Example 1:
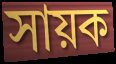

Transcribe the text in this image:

সায়ক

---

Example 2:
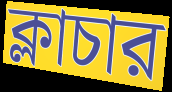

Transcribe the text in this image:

ক্লাচার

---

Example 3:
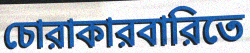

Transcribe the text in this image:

চোরাকারবারিতে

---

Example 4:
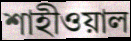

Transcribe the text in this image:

শাহীওয়াল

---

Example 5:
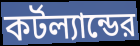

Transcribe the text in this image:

কর্টল্যান্ডের